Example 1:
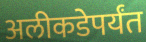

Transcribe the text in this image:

अलीकडेपर्यंत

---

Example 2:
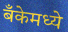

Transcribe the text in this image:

बँकेमध्ये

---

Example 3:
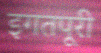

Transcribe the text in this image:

इगतपूरी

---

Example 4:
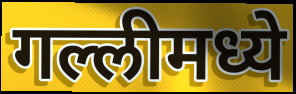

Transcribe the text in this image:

गल्लीमध्ये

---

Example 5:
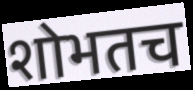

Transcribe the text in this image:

शोभतच